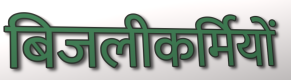
बिजलीकर्मियों